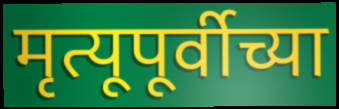
मृत्यूपूर्वीच्या